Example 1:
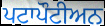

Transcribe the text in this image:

ਪਟਾਪੌਟੀਅਨ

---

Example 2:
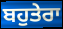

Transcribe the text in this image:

ਬਹੁਤੇਰਾ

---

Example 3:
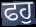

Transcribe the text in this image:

ਫਹੁ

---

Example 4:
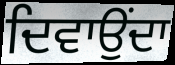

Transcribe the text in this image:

ਦਿਵਾਉਂਦਾ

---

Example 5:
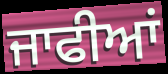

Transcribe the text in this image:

ਜਾਫੀਆਂ